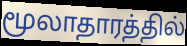
மூலாதாரத்தில்